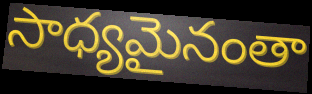
సాధ్యమైనంతా